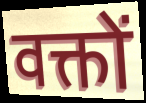
वक्तों